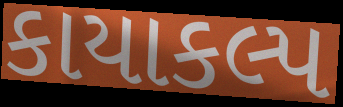
કાયાકલ્પ